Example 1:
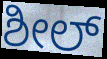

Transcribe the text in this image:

ಶೀಲ್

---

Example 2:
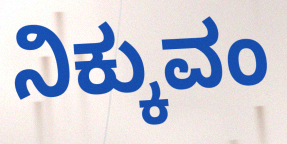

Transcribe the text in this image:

ನಿಕ್ಕುವಂ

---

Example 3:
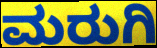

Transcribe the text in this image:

ಮರುಗಿ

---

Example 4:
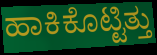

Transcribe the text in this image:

ಹಾಕಿಕೊಟ್ಟಿತ್ತು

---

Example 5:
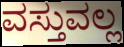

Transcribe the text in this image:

ವಸ್ತುವಲ್ಲ